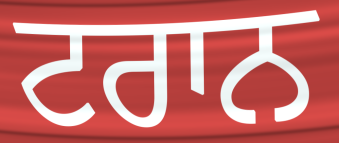
ਟਰਾਨ